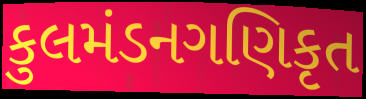
કુલમંડનગણિકૃત